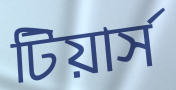
টিয়ার্স